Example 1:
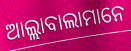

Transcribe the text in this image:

ଆଲ୍ଲାବାଲାମାନେ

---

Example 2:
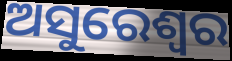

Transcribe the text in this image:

ଅସୁରେଶ୍ୱର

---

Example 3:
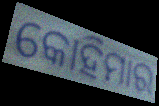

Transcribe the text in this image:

କୋହିମାର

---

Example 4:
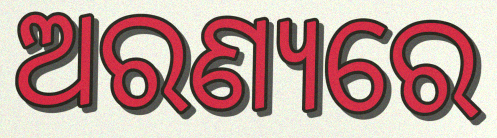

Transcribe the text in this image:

ଅରଣ୍ୟରେ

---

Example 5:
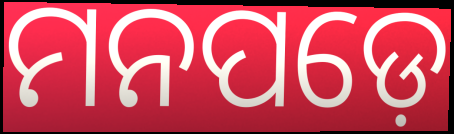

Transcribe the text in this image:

ମନପଡ଼େ